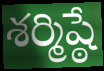
శర్మిష్ఠే